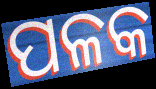
ପଳକ